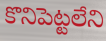
కొనిపెట్టలేని